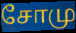
சோமு